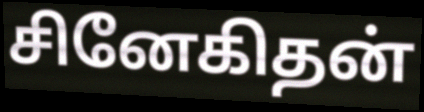
சினேகிதன்